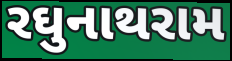
રઘુનાથરામ